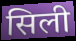
सिली